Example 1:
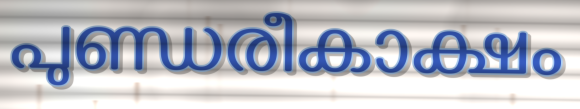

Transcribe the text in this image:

പുണ്ഡരീകാക്ഷം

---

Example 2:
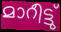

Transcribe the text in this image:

മാറീട്ടു്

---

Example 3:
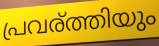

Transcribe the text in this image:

പ്രവര്ത്തിയും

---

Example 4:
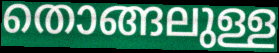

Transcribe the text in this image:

തൊങ്ങലുള്ള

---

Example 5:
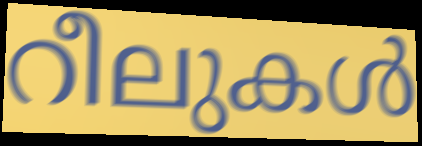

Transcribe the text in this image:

റീലുകൾ